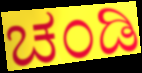
ಚಂಡಿ